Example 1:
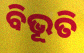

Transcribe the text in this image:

ବିଭୂତି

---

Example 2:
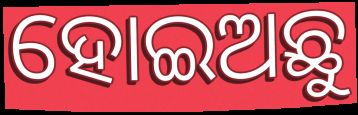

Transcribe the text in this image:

ହୋଇଅଛୁ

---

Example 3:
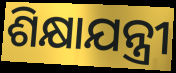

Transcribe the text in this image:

ଶିକ୍ଷାଯନ୍ତ୍ରୀ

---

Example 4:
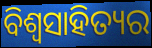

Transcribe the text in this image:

ବିଶ୍ଵସାହିତ୍ୟର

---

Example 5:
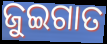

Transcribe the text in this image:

ଜୁଇଗାତ